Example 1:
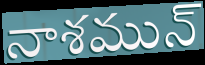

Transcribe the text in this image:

నాశమున్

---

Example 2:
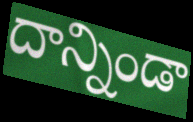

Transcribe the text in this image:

దాన్నిండా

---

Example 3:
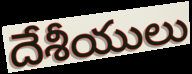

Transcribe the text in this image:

దేశీయులు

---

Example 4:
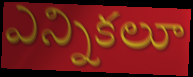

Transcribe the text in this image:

ఎన్నికలూ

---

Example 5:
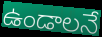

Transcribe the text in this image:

ఉండాలనే